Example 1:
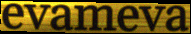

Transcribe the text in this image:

evameva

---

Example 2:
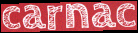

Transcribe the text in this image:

carnac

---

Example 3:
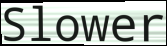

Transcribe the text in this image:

Slower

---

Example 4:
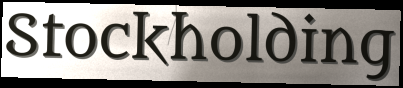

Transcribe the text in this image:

Stockholding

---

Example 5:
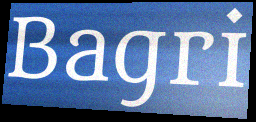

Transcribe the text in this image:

Bagri